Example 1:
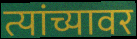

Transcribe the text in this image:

त्यांच्यावर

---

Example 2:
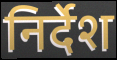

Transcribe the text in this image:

निर्देश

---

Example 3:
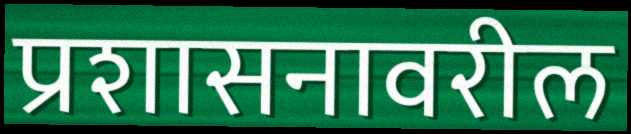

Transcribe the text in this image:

प्रशासनावरील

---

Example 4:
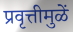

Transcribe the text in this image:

प्रवृत्तीमुळें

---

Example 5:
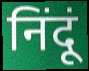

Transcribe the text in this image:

निंदूं